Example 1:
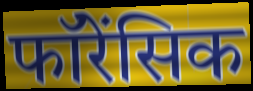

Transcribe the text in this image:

फॉरेंसिक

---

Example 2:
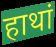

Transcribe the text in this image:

हाथां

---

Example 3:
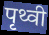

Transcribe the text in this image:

पृथ्‍वी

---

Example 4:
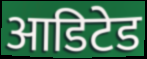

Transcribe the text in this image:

आडिटेड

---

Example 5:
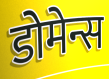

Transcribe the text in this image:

डोमेन्स